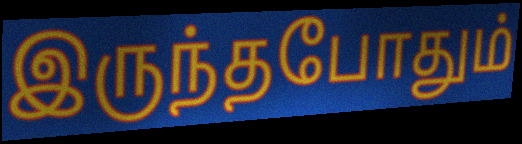
இருந்தபோதும்